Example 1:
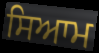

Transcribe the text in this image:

ਸਿਆਮ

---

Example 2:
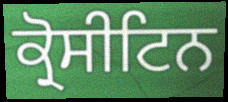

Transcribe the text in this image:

ਕ੍ਰੋਸੀਟਿਨ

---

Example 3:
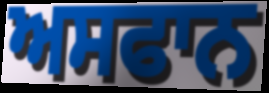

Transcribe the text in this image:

ਅਸਫਾਨ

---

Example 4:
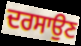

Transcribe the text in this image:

ਦਰਸਾਉਣ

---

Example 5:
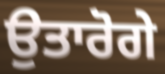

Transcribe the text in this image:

ਉਤਾਰੋਗੇ